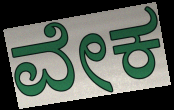
ವೇಕ